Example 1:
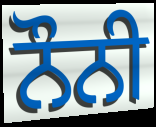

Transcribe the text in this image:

ਨੌਨੀ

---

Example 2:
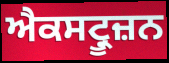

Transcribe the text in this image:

ਐਕਸਟ੍ਰੂਜ਼ਨ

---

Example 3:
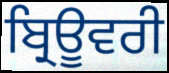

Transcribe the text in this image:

ਬ੍ਰਿਊਵਰੀ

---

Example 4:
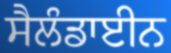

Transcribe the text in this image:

ਸੈਲੰਡਾਈਨ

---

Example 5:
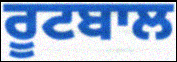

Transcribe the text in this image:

ਰੂਟਬਾਲ